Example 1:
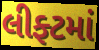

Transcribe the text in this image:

લીફ્ટમાં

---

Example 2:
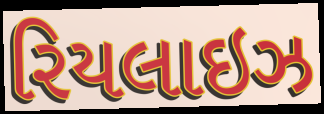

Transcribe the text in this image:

રિયલાઇઝ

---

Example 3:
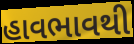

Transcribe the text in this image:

હાવભાવથી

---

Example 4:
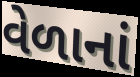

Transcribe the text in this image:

વેળાનાં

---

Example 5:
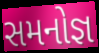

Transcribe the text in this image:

સમનોજ્ઞ